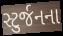
સ્ટુર્જનના